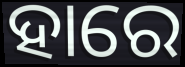
ହାରେ